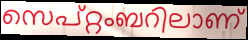
സെപ്റ്റംബറിലാണ്